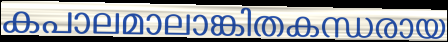
കപാലമാലാങ്കിതകന്ധരായ